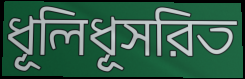
ধূলিধূসরিত